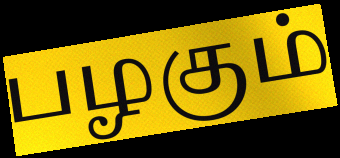
பழகும்